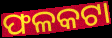
ଫଳକଟା